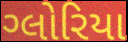
ગ્લોરિયા